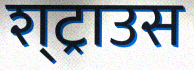
श्ट्राउस